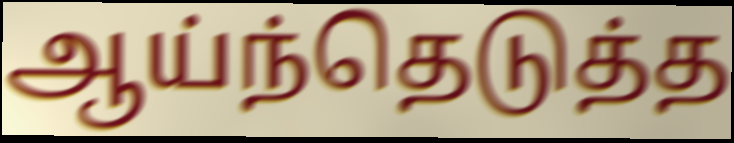
ஆய்ந்தெடுத்த